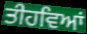
ਤੀਹਵਿਆਂ